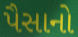
પૈસાનો